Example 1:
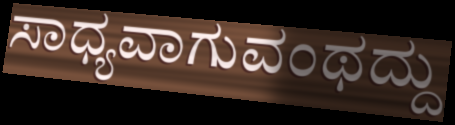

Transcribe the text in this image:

ಸಾಧ್ಯವಾಗುವಂಥದ್ದು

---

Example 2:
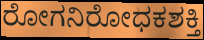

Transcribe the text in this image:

ರೋಗನಿರೋಧಕಶಕ್ತಿ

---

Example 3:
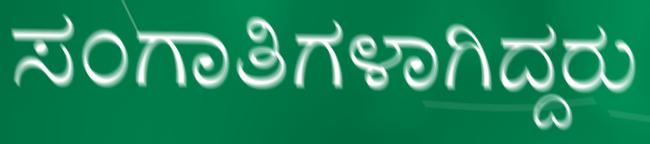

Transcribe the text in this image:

ಸಂಗಾತಿಗಳಾಗಿದ್ದರು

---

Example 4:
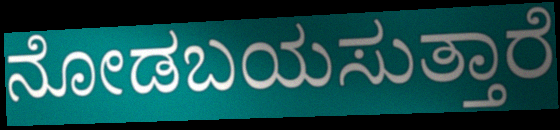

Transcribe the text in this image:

ನೋಡಬಯಸುತ್ತಾರೆ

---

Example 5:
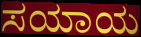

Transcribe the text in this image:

ಸಯಾಯ